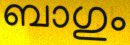
ബാഗും